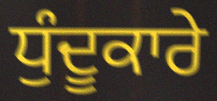
ਧੁੰਦੂਕਾਰੇ